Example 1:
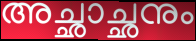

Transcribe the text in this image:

അച്ഛാച്ഛനും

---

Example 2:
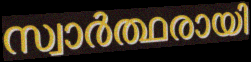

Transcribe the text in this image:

സ്വാർത്ഥരായി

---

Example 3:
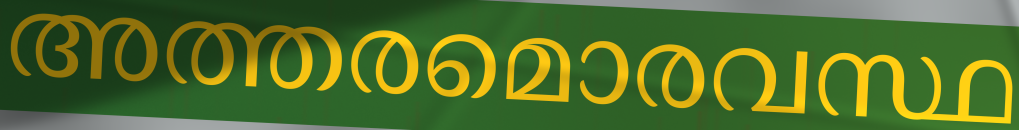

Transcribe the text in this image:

അത്തരമൊരവസ്ഥ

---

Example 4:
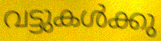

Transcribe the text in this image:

വട്ടുകൾക്കു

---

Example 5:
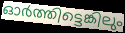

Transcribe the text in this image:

ഓർത്തിട്ടെങ്കിലും